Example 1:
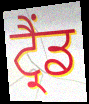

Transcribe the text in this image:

ਟ੍ਰੈਂਡ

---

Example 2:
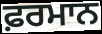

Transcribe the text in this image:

ਫ਼ਰਮਾਨ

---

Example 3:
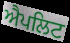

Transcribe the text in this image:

ਐਪਲਿਟ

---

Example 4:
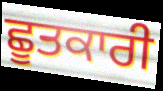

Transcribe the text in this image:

ਛੂਤਕਾਰੀ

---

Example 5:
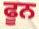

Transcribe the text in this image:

ਫੂਨ